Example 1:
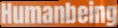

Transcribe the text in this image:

Humanbeing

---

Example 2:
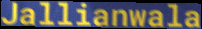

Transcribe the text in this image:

Jallianwala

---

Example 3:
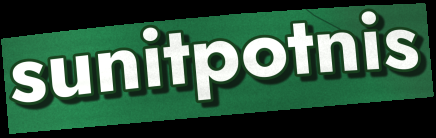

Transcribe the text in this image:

sunitpotnis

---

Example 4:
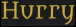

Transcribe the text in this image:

Hurry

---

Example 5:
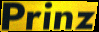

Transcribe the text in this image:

Prinz